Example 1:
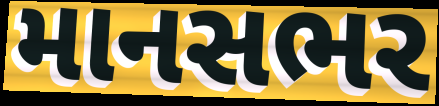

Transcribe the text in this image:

માનસભર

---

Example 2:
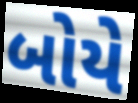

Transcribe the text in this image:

બોયે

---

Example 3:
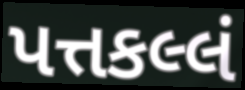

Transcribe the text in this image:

પત્તકલ્લં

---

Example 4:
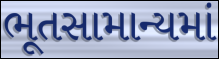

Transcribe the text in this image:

ભૂતસામાન્યમાં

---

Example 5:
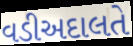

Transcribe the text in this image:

વડીઅદાલતે